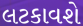
લટકાવશે